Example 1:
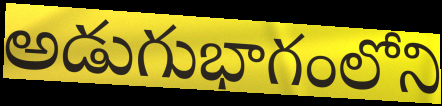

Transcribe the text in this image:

అడుగుభాగంలోని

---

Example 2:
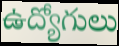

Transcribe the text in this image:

ఉద్యోగులు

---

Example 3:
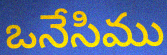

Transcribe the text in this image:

ఒనేసిము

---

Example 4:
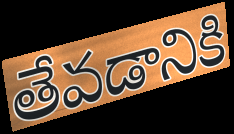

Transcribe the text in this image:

తేవడానికి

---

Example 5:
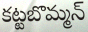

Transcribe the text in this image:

కట్టబొమ్మన్